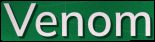
Venom